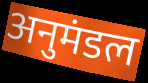
अनुमंडल